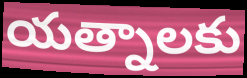
యత్నాలకు